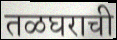
तळघराची